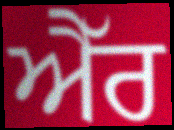
ਐੱਰ